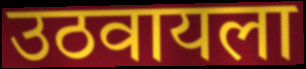
उठवायला